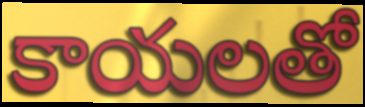
కాయలతో